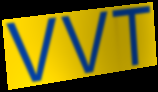
VVT